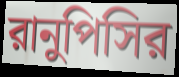
রানুপিসির